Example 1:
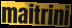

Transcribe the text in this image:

maitrini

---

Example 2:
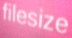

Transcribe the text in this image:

filesize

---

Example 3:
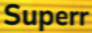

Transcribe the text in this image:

Superr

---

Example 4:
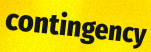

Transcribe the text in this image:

contingency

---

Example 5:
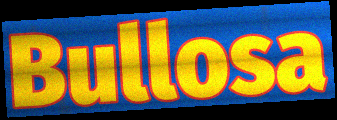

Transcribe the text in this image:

Bullosa